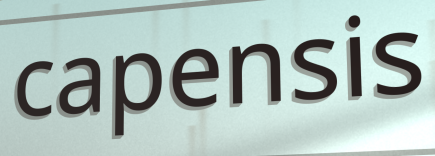
capensis